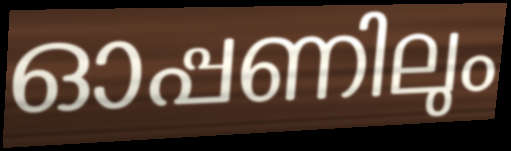
ഓപ്പണിലും